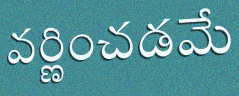
వర్ణించడమే